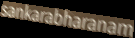
sankarabharanam